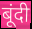
बूंदी